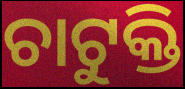
ଚାଟୁକ୍ତି